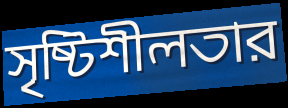
সৃষ্টিশীলতার